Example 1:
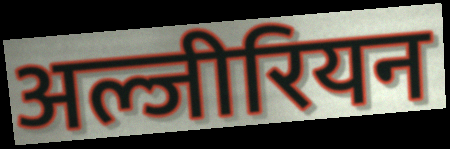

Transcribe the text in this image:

अल्जीरियन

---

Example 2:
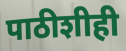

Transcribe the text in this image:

पाठीशीही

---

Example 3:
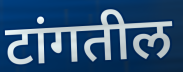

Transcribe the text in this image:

टांगतील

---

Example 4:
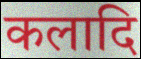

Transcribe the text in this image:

कलादि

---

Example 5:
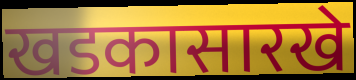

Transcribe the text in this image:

खडकासारखे